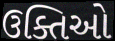
ઉક્તિઓ